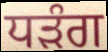
ਧੜੰਗ